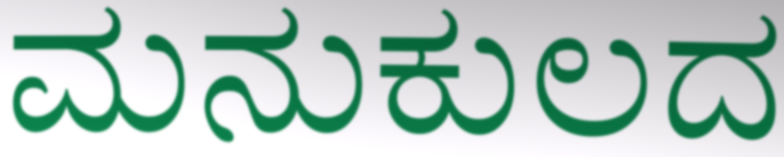
ಮನುಕುಲದ